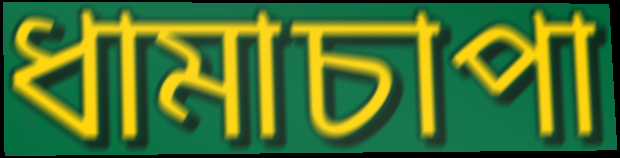
ধামাচাপা